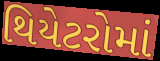
થિયેટરોમાં